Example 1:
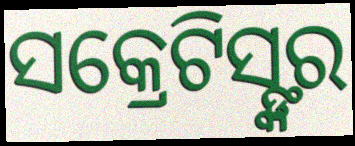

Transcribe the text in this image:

ସକ୍ରେଟିସ୍ଙ୍କର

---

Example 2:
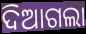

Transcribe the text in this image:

ଦିଆଗଲା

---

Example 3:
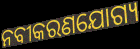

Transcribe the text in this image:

ନବୀକରଣଯୋଗ୍ୟ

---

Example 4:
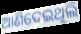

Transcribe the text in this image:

ଆଣିଦେଇଥିଲି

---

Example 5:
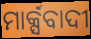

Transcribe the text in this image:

ମାର୍କ୍ସବାଦୀ